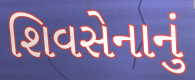
શિવસેનાનું